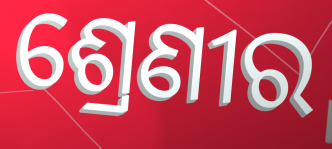
ଶ୍ରେଣୀର